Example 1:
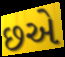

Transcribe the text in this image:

છએ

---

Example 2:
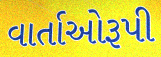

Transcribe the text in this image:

વાર્તાઓરૂપી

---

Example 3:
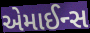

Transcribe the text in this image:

એમાઈન્સ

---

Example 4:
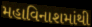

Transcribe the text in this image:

મહાવિનાશમાંથી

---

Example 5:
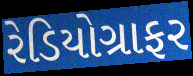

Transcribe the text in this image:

રેડિયોગ્રાફર